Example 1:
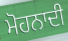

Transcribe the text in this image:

ਮੋਹਨਾਦੀ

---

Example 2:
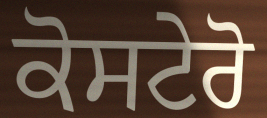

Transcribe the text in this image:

ਕੋਸਟੇਰੋ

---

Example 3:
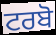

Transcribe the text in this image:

ਟਰਬੋ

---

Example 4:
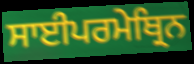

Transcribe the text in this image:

ਸਾਈਪਰਮੇਥ੍ਰਿਨ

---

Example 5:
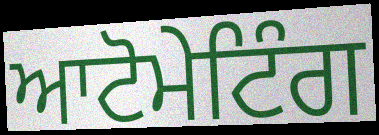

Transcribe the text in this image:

ਆਟੋਮੇਟਿੰਗ